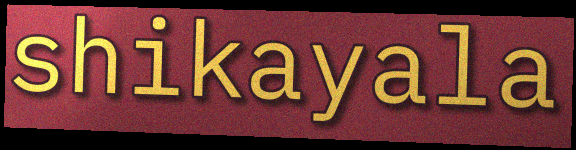
shikayala